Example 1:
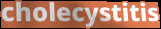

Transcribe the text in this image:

cholecystitis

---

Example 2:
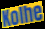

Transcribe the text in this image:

Kolhe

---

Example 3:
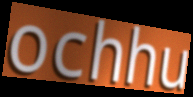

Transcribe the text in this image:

ochhu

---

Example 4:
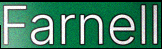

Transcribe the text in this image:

Farnell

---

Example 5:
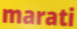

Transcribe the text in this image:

marati